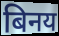
बिनय